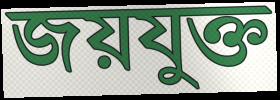
জয়যুক্ত